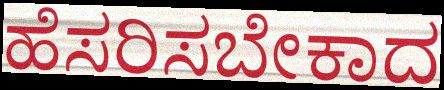
ಹೆಸರಿಸಬೇಕಾದ